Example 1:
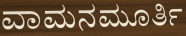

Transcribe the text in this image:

ವಾಮನಮೂರ್ತಿ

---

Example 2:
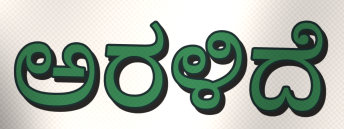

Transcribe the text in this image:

ಅರಳಿದೆ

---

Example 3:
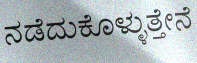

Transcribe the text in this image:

ನಡೆದುಕೊಳ್ಳುತ್ತೇನೆ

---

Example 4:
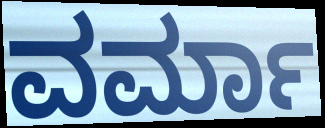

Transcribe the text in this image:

ವರ್ಮಾ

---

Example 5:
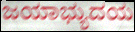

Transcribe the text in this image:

ಜಯಾಭ್ಯುದಯ